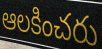
ఆలకించరు